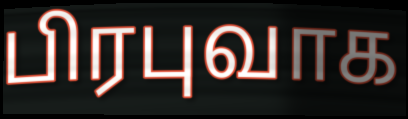
பிரபுவாக